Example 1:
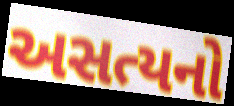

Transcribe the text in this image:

અસત્યનો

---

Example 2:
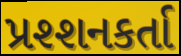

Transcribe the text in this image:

પ્રશ્શનકર્તા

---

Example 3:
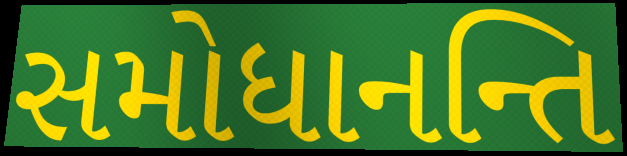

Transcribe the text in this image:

સમોધાનન્તિ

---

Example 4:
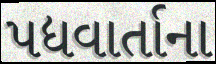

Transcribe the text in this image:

પદ્યવાર્તાના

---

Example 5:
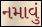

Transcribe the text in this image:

નમાવું